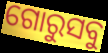
ଗୋରୁସବୁ